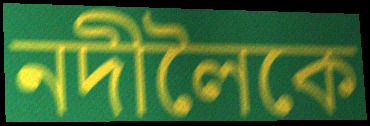
নদীলৈকে